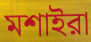
মশাইরা